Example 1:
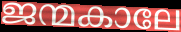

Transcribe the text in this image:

ജന്മകാലേ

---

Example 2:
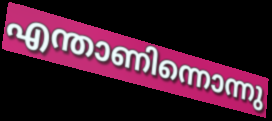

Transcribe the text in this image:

എന്താണിന്നൊന്നു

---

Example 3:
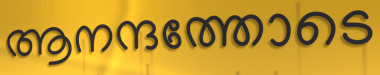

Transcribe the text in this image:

ആനന്ദത്തോടെ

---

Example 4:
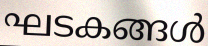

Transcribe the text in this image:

ഘടകങ്ങൾ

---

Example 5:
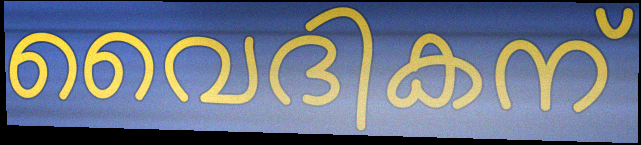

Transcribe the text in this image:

വൈദികന്